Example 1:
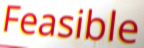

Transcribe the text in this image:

Feasible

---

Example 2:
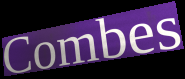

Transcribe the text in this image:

Combes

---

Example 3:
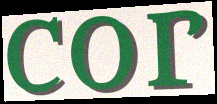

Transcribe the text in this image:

cor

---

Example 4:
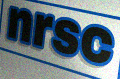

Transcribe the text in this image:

nrsc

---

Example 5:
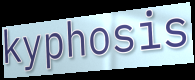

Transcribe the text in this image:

kyphosis